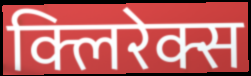
क्लिरेक्स